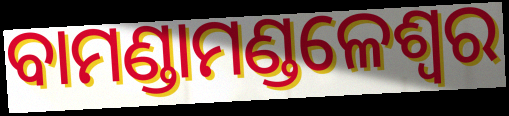
ବାମଣ୍ଡାମଣ୍ଡଳେଶ୍ୱର